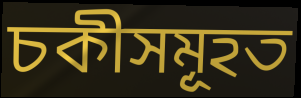
চকীসমূহত